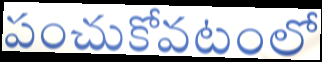
పంచుకోవటంలో